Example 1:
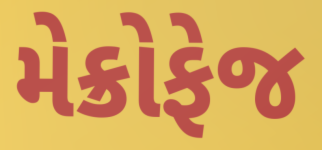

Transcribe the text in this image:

મેક્રોફેજ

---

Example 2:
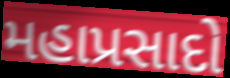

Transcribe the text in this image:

મહાપ્રસાદો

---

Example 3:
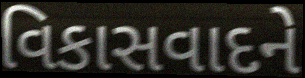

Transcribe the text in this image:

વિકાસવાદને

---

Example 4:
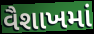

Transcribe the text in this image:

વૈશાખમાં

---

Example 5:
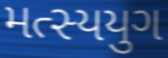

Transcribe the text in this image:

મત્સ્યયુગ